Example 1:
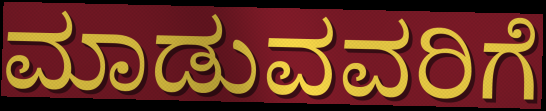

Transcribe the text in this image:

ಮಾಡುವವರಿಗೆ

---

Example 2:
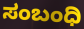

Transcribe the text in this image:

ಸಂಬಂಧಿ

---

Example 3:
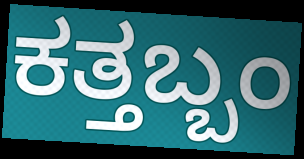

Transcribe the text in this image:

ಕತ್ತಬ್ಬಂ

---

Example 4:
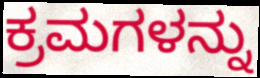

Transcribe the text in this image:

ಕ್ರಮಗಳನ್ನು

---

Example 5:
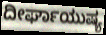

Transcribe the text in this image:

ದೀರ್ಘಾಯುಷ್ಯ